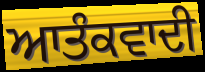
ਆਤੰਕਵਾਦੀ